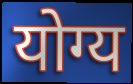
योग्य